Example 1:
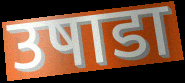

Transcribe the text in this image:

उषाडा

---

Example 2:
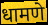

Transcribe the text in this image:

धामणे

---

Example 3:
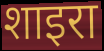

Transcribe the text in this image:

शाइरा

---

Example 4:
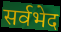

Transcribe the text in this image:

सर्वभेद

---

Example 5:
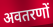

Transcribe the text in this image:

अवतरणों